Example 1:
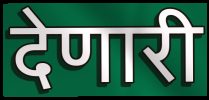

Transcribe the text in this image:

देणारी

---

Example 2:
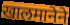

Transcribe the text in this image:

खालमानेने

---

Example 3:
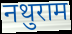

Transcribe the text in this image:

नथुराम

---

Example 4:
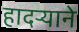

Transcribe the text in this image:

हादऱ्याने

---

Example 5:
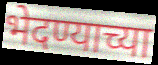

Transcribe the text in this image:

भेदण्याच्या